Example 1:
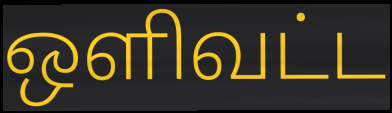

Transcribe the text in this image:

ஒளிவட்ட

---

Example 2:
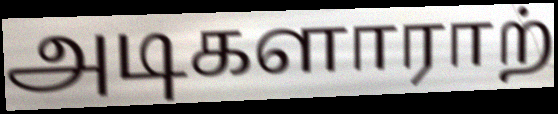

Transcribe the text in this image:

அடிகளாராற்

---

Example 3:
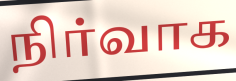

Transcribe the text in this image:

நிர்வாக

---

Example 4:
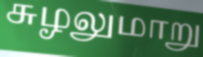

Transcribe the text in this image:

சுழலுமாறு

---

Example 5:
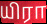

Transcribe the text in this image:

யிரா